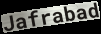
Jafrabad